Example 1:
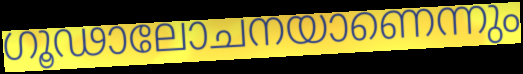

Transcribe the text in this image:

ഗൂഢാലോചനയാണെന്നും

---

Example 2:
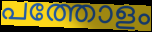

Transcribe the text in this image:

പത്തോളം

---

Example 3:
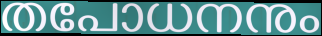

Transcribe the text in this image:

തപോധനനും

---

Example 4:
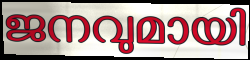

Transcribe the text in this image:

ജനവുമായി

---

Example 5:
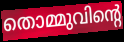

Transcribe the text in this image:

തൊമ്മുവിന്റെ